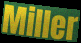
Miller